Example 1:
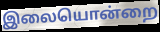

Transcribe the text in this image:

இலையொன்றை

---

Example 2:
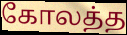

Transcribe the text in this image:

கோலத்த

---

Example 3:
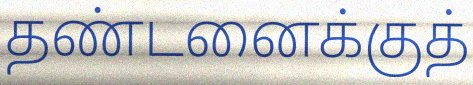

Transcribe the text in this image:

தண்டனைக்குத்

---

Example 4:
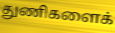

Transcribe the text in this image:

துணிகளைக்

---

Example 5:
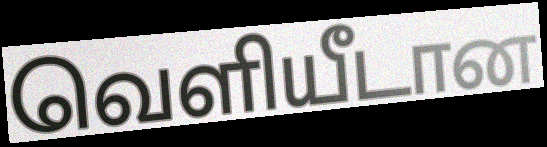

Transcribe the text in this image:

வெளியீடான